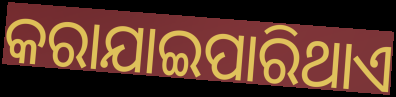
କରାଯାଇପାରିଥାଏ